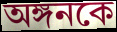
অঙ্গনকে